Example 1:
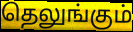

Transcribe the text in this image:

தெலுங்கும்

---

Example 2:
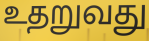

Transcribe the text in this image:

உதறுவது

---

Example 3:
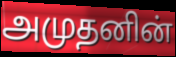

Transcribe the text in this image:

அமுதனின்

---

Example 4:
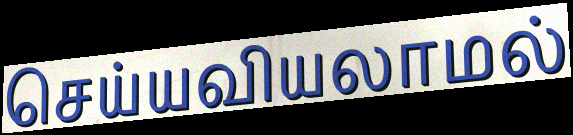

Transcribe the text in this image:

செய்யவியலாமல்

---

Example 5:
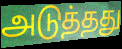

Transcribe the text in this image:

அடுத்தது